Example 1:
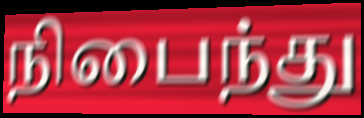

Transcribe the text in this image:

நிபைந்து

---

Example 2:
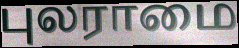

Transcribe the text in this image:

புலராமை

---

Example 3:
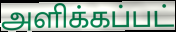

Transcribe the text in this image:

அளிக்கப்பட்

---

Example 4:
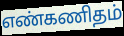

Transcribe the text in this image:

எண்கணிதம்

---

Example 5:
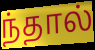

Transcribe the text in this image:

ந்தால்